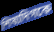
শিষ্যদিগকে